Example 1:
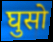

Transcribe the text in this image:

घुसो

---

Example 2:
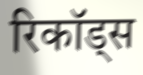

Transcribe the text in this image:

रिकॉड्स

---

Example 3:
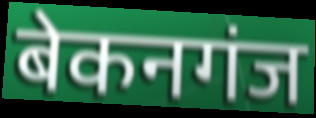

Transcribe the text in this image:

बेकनगंज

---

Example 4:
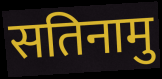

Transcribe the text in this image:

सतिनामु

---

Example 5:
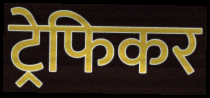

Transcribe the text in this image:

ट्रेफिकर